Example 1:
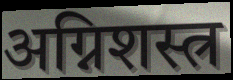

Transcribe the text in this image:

अग्निशस्त्र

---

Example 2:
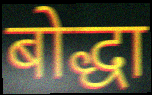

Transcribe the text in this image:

बोद्धा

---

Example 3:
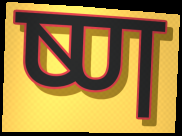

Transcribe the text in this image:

ष्ण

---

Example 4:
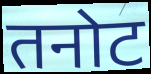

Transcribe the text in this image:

तनोट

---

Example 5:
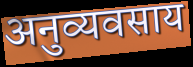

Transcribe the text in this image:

अनुव्यवसाय